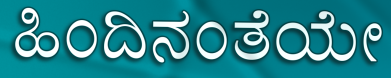
ಹಿಂದಿನಂತೆಯೇ